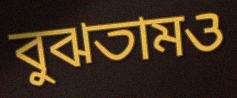
বুঝতামও